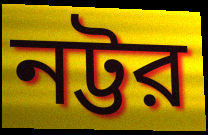
নট্টর